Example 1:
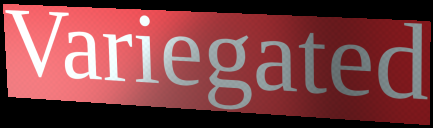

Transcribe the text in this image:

Variegated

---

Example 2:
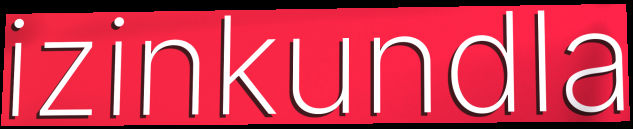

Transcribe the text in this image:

izinkundla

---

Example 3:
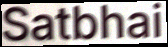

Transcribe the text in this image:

Satbhai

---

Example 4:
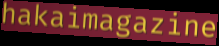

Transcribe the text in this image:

hakaimagazine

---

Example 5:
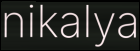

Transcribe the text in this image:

nikalya